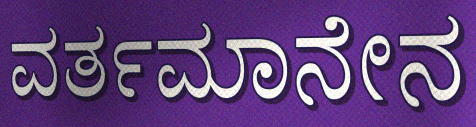
ವರ್ತಮಾನೇನ